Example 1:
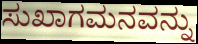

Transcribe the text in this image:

ಸುಖಾಗಮನವನ್ನು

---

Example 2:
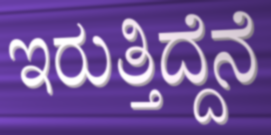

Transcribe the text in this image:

ಇರುತ್ತಿದ್ದೆನೆ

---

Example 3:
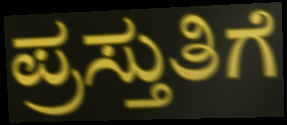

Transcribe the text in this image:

ಪ್ರಸ್ತುತಿಗೆ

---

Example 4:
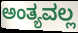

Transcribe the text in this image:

ಅಂತ್ಯವಲ್ಲ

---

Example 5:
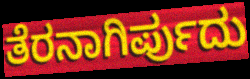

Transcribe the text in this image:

ತೆರನಾಗಿರ್ಪುದು